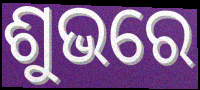
ଶୁଭରେ